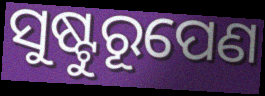
ସୁଷ୍ଟୁରୂପେଣ